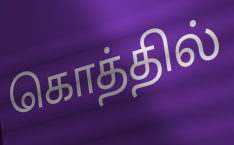
கொத்தில்